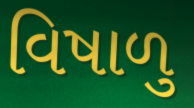
વિષાળુ